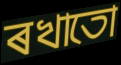
ৰখাতো